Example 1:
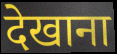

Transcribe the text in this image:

देखाना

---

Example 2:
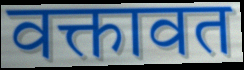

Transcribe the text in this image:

वक्तावत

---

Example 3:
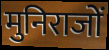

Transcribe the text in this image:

मुनिराजों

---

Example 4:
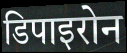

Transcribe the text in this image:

डिपाइरोन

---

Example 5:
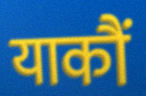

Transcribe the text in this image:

याकौं